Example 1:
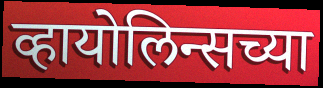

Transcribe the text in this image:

व्हायोलिन्सच्या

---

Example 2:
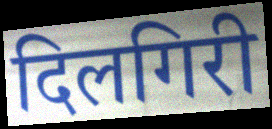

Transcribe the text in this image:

दिलगिरी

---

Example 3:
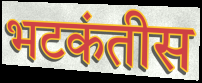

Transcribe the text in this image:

भटकंतीस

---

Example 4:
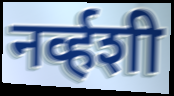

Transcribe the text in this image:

नर्व्हशी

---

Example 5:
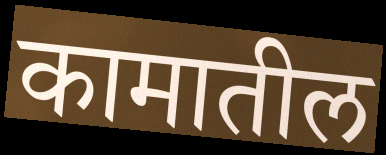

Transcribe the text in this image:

कामातील